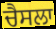
ਚੈਸਲਾ